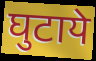
घुटाये